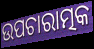
ଉପଚାରାତ୍ମକ